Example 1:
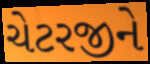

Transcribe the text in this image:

ચેટરજીને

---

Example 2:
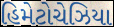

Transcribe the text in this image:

હિમેટોચેઝિયા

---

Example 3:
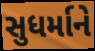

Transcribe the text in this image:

સુધર્માને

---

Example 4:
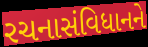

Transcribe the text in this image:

રચનાસંવિધાનને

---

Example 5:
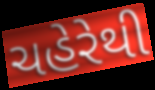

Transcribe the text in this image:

ચહેરેથી